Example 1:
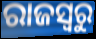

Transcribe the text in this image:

ରାଜସ୍ବରୁ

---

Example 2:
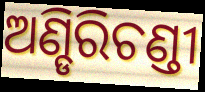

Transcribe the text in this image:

ଅଣ୍ଡିରିଚଣ୍ଡୀ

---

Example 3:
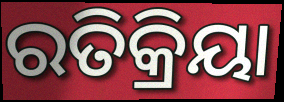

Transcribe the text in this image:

ରତିକ୍ରିୟା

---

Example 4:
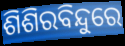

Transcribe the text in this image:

ଶିଶିରବିନ୍ଦୁରେ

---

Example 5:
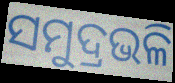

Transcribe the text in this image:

ସମୁଦ୍ରଭଳି